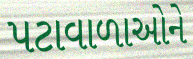
પટાવાળાઓને